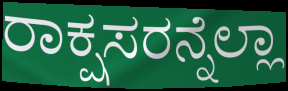
ರಾಕ್ಷಸರನ್ನೆಲ್ಲಾ